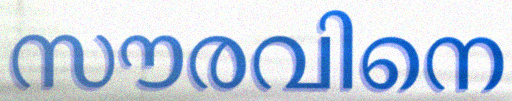
സൗരവിനെ